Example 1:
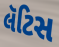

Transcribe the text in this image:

લૅટિસ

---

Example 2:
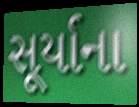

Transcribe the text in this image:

સૂર્યાના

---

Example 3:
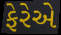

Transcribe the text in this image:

ફેરેએ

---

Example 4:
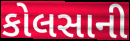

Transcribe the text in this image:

કોલસાની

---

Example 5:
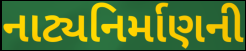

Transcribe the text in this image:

નાટ્યનિર્માણની